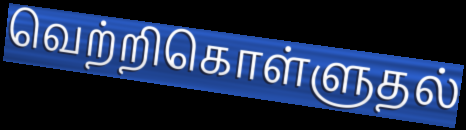
வெற்றிகொள்ளுதல்